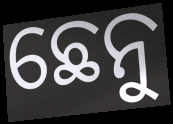
ଛେନୁ